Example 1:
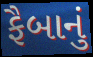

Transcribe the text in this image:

ફૈબાનું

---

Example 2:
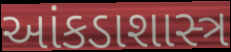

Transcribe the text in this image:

આંકડાશાસ્ત્ર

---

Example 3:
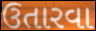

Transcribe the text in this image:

ઉતારવા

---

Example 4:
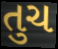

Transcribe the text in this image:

તુચ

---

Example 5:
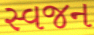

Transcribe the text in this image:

સ્વજન